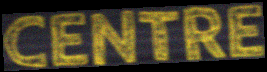
CENTRE